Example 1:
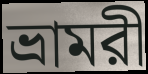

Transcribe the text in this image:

ভ্রামরী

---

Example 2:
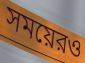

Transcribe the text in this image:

সময়েরও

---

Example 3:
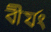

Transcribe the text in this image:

বীর্যং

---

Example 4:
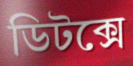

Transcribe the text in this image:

ডিটক্সে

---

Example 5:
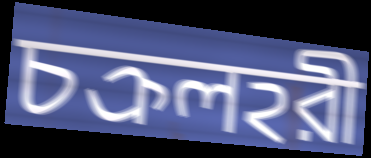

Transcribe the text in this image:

চক্রলহরী